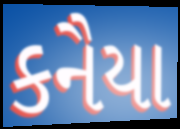
કનૈયા